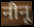
नीनू